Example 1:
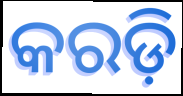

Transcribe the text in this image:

କରଡ଼ି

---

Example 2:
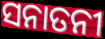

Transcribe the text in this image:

ସନାତନୀ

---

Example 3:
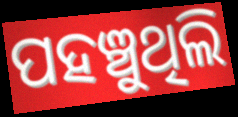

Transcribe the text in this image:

ପହଞ୍ଚୁଥିଲି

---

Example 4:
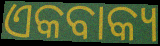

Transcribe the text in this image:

ଏକବାକ୍ୟ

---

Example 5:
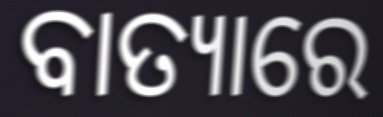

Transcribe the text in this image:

ବାତ୍ୟାରେ